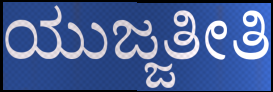
ಯುಜ್ಜತೀತಿ